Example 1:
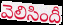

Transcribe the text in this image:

వెలిసిందీ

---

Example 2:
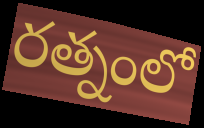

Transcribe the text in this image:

రత్నంలో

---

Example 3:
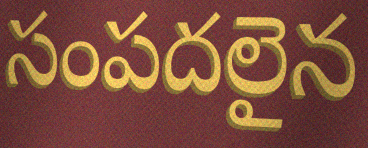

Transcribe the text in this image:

సంపదలైన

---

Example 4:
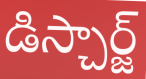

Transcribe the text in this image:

డిస్చార్జ్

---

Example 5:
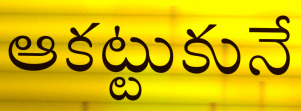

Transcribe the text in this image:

ఆకట్టుకునే